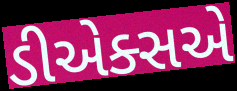
ડીએક્સએ